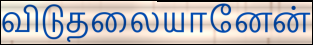
விடுதலையானேன்